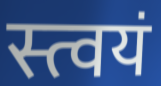
स्त्वयं